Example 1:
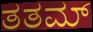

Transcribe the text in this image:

ತತಮ್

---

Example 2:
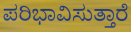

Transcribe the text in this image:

ಪರಿಭಾವಿಸುತ್ತಾರೆ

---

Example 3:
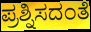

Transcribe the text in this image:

ಪ್ರಶ್ನಿಸದಂತೆ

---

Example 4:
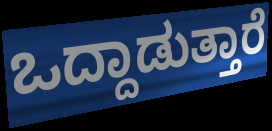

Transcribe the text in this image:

ಒದ್ದಾಡುತ್ತಾರೆ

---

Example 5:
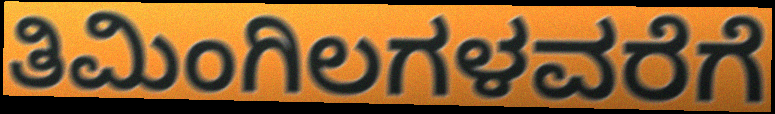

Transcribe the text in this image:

ತಿಮಿಂಗಿಲಗಳವರೆಗೆ